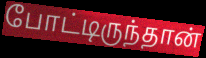
போட்டிருந்தான்